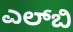
ಎಲ್‌ಬಿ